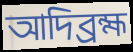
আদিব্রহ্ম